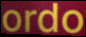
ordo